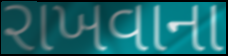
રાખવાના